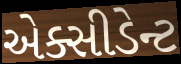
એક્સીડેન્ટ